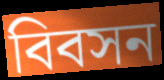
বিবসন